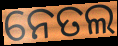
ନେତଲ